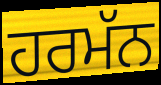
ਹਰਮੱਨ